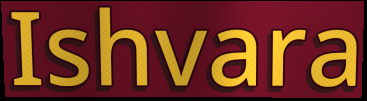
Ishvara